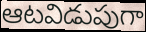
ఆటవిడుపుగా